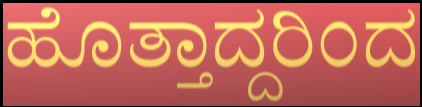
ಹೊತ್ತಾದ್ದರಿಂದ